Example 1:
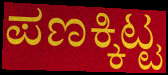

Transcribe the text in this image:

ಪಣಕ್ಕಿಟ್ಟ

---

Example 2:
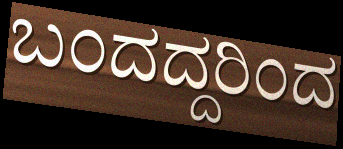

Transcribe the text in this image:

ಬಂದದ್ದರಿಂದ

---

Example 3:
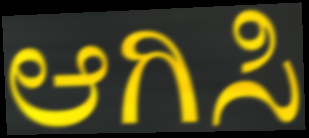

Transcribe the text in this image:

ಆಗಿಸಿ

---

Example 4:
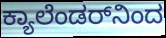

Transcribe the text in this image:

ಕ್ಯಾಲೆಂಡರ್‌ನಿಂದ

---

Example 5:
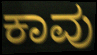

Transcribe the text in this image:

ಕಾವು